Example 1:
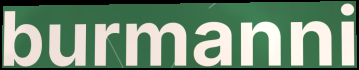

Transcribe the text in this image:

burmanni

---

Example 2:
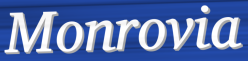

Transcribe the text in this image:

Monrovia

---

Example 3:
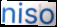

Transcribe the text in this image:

niso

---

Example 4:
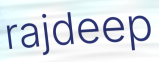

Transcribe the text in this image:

rajdeep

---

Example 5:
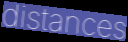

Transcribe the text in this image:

distances